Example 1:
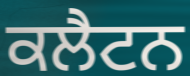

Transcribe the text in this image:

ਕਲੈਟਨ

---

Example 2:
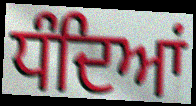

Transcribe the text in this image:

ਧੰਦਿਆਂ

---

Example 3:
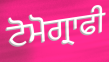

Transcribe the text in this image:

ਟੋਮੋਗ੍ਰਾਫੀ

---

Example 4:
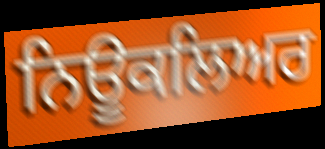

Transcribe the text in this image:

ਨਿਊਕਲਿਅਰ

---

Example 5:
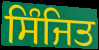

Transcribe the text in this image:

ਸਿੰਜਿਤ